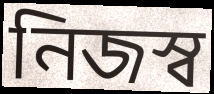
নিজস্ব